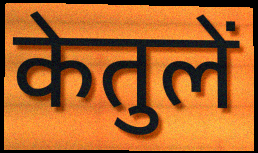
केतुलें